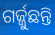
ଗର୍ଜ୍ଜୁଛନ୍ତି